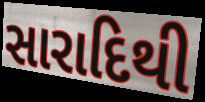
સારાદિથી